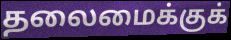
தலைமைக்குக்